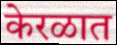
केरळात